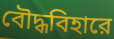
বৌদ্ধবিহারে